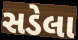
સડેલા